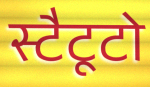
स्टैटूटो